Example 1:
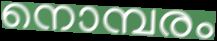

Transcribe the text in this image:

നൊമ്പരം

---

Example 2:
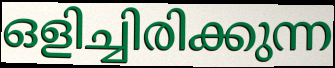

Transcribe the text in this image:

ഒളിച്ചിരിക്കുന്ന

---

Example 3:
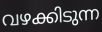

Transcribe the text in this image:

വഴക്കിടുന്ന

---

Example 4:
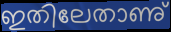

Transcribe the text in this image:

ഇതിലേതാണു്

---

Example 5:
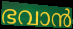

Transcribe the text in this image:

ഭവാൻ